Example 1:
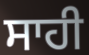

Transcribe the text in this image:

ਸਾਹੀ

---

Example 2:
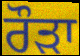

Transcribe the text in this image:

ਰੌੜਾ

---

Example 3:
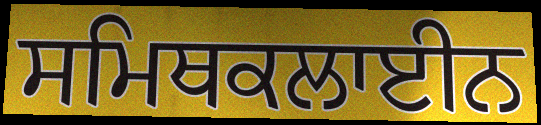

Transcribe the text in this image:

ਸਮਿਥਕਲਾਈਨ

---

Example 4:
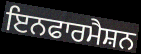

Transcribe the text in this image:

ਇਨਫਾਰਮੈਸ਼ਨ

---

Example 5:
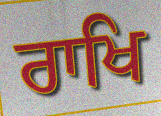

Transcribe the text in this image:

ਰਾਖਿ